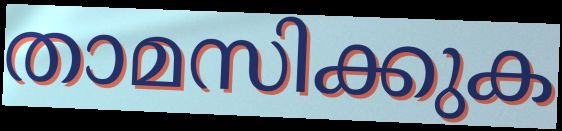
താമസിക്കുക